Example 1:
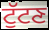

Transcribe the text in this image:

ਟੁੱਟਣ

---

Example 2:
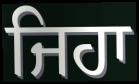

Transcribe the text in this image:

ਜਿਹਾ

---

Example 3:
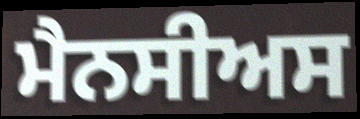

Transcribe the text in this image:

ਮੈਨਸੀਅਸ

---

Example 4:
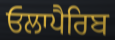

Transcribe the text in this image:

ਓਲਾਪੈਰਿਬ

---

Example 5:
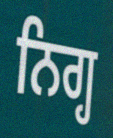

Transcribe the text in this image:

ਨਿਗ੍ਹ